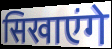
सिखाएंगे